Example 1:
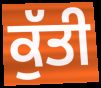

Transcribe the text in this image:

ਕੁੱਤੀ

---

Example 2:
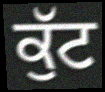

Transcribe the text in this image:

ਕੁੱਟ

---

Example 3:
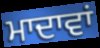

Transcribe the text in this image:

ਮਾਦਾਵਾਂ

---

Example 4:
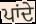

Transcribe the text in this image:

ਪਾਂਦੇ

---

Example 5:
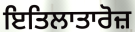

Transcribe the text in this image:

ਇਤਿਲਾਤਾਰੋਜ਼